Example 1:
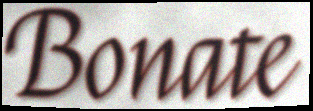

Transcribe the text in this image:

Bonate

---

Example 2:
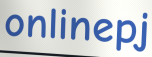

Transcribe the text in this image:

onlinepj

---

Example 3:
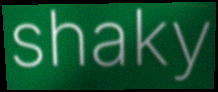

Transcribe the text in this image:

shaky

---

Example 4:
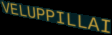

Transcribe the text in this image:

VELUPPILLAI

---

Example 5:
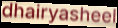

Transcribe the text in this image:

dhairyasheel